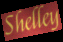
Shelley